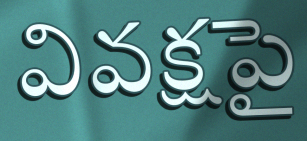
వివక్షపై